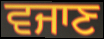
ਵਜਾਣ